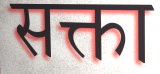
सक्ता